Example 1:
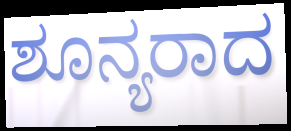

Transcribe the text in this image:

ಶೂನ್ಯರಾದ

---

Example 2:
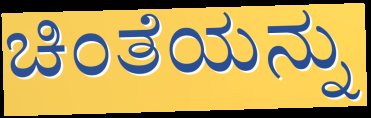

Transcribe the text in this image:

ಚಿಂತೆಯನ್ನು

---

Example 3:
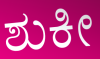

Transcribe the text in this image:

ಶುಕೀ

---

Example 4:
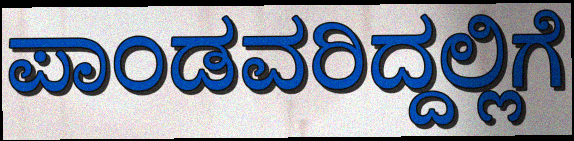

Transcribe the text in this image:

ಪಾಂಡವರಿದ್ದಲ್ಲಿಗೆ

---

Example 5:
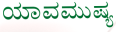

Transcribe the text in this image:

ಯಾವಮುಷ್ಯ